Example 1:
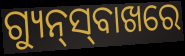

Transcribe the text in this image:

ଗ୍ୟୁନ୍‍ସ୍‍ବାଖରେ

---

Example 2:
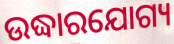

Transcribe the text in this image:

ଉଦ୍ଧାରଯୋଗ୍ୟ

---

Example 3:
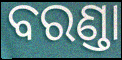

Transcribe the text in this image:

ବରଣ୍ଡା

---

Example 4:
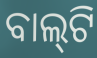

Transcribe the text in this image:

ବାଲ୍‍ଟି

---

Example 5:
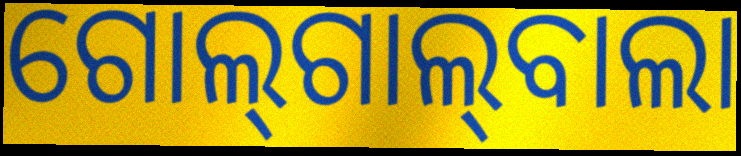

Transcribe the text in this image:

ଗୋଲ୍‍ଗାଲ୍‍ବାଲା